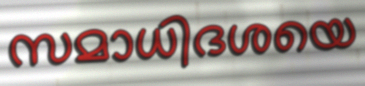
സമാധിദശയെ